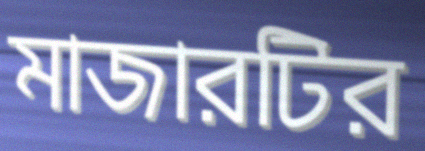
মাজারটির